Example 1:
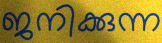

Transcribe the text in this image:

ജനിക്കുന്ന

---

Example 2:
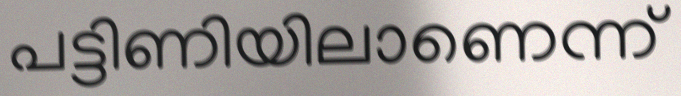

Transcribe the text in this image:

പട്ടിണിയിലാണെന്ന്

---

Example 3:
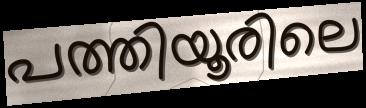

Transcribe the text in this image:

പത്തിയൂരിലെ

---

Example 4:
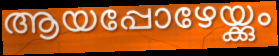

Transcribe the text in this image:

ആയപ്പോഴേയ്ക്കും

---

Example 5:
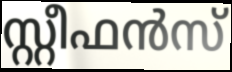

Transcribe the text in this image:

സ്റ്റീഫൻസ്